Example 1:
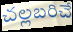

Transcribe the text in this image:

చల్లబరిచే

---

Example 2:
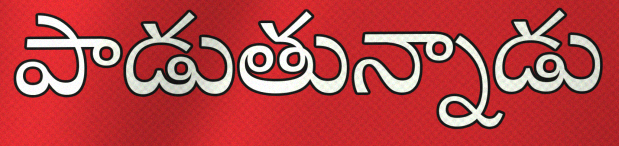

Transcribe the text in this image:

పాడుతున్నాడు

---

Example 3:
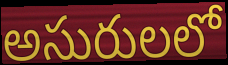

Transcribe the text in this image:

అసురులలో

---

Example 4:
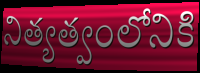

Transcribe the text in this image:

నిత్యత్వంలోనికి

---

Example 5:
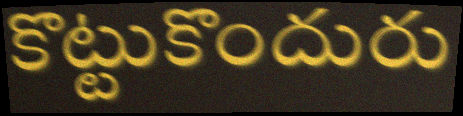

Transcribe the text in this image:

కొట్టుకొందురు